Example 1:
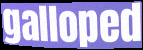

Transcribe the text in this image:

galloped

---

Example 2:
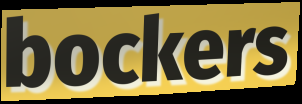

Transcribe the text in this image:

bockers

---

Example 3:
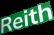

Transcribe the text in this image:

Reith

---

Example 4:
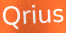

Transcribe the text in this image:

Qrius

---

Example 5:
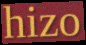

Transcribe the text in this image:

hizo